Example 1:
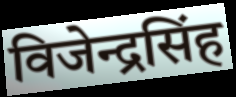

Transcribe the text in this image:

विजेन्द्रसिंह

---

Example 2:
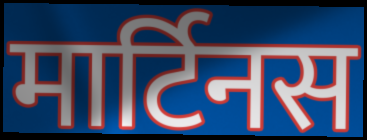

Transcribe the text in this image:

मार्टिनस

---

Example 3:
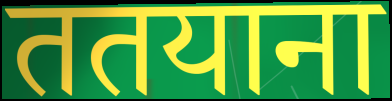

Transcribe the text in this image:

ततयाना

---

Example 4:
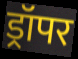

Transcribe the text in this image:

ड्रॉपर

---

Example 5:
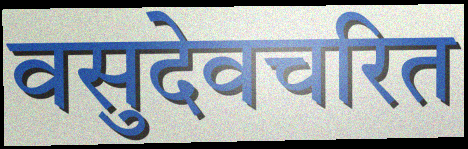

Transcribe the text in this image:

वसुदेवचरित